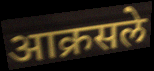
आक्रसले